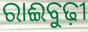
ରାଈବୁଢ଼ୀ